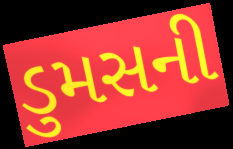
ડુમસની